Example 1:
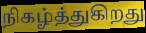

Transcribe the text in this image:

நிகழ்த்துகிறது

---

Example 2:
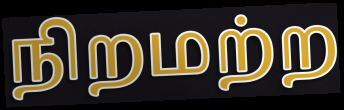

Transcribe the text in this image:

நிறமற்ற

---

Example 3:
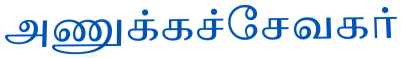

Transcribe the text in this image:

அணுக்கச்சேவகர்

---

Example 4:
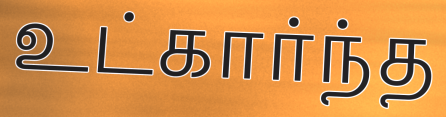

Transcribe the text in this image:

உட்கார்ந்த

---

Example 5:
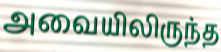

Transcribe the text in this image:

அவையிலிருந்த